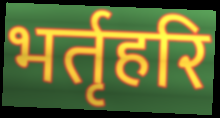
भर्तृहरि